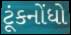
ટૂંકનોંધો